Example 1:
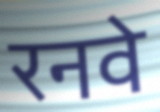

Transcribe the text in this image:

रनवे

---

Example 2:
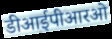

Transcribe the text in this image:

डीआईपीआरओ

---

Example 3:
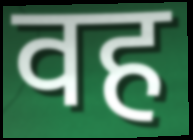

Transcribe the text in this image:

वह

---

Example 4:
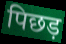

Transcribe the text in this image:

पिछड़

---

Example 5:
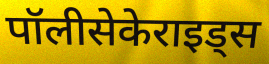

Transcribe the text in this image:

पॉलीसेकेराइड्स